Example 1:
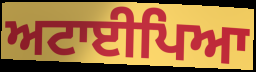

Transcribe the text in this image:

ਅਟਾਈਪਿਆ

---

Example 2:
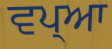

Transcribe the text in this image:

ਵਪ੍ਆ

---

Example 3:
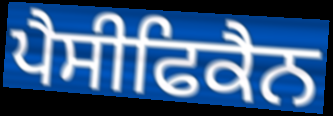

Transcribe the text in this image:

ਪੈਸੀਫਿਕੈਨ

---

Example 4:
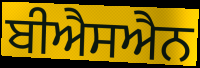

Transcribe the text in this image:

ਬੀਐਸਐਨ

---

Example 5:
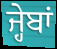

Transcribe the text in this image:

ਜ੍ਹੇਬਾਂ